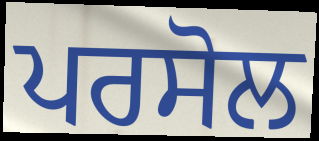
ਪਰਸੋਲ